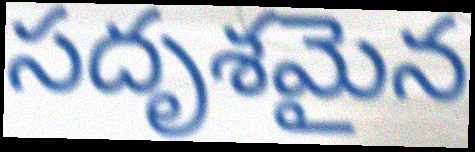
సదృశమైన